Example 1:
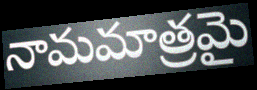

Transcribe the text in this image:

నామమాత్రమై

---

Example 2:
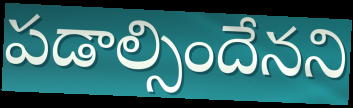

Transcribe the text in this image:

పడాల్సిందేనని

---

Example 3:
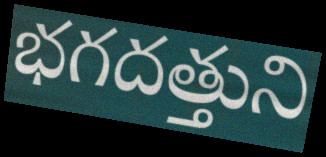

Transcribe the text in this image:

భగదత్తుని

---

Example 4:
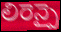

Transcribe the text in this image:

లిరెన్పై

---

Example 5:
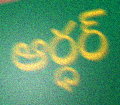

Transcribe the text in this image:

ఆర్ధర్